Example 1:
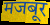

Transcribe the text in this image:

मजबूर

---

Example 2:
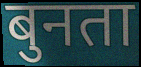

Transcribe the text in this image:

बुनता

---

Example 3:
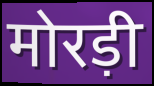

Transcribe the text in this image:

मोरड़ी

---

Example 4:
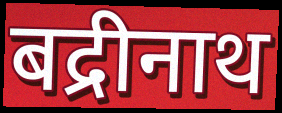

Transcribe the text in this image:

बद्रीनाथ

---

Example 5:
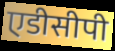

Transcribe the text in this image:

एडीसीपी